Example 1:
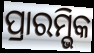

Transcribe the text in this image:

ପ୍ରାରମ୍ଭିକ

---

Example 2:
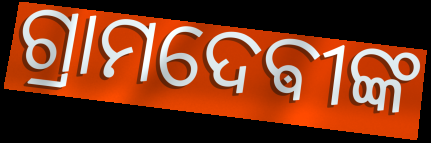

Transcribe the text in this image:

ଗ୍ରାମଦେଵୀଙ୍କ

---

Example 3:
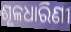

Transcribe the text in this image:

ଶୂଳଧାରିଣୀ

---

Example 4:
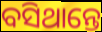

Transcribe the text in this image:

ବସିଥାନ୍ତେ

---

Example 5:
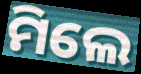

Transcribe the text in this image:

ମିଲେ